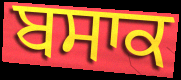
ਬਸਾਕ